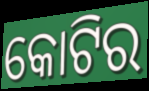
କୋଟିର